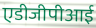
एडीजीपीआई